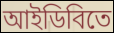
আইডিবিতে